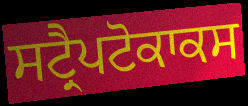
ਸਟ੍ਰੈਪਟੋਕਾਕਸ